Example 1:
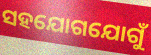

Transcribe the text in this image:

ସହଯୋଗଯୋଗୁଁ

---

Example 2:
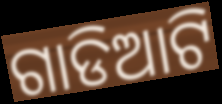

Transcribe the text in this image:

ଗାଡିଆଟି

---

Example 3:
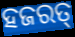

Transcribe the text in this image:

ହଜରତ୍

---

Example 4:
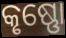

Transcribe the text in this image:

କୃଷ୍ଣୋ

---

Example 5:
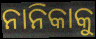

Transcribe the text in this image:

ନାନିକାକୁ